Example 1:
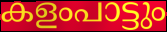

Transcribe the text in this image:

കളംപാട്ടും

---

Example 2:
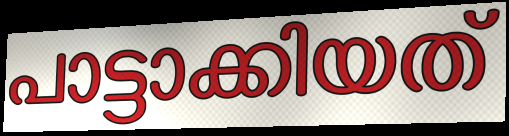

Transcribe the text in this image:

പാട്ടാക്കിയത്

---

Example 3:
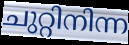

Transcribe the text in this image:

ചുറ്റിനിന്ന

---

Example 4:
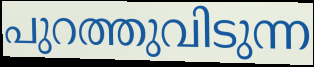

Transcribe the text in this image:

പുറത്തുവിടുന്ന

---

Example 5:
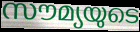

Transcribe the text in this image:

സൗമ്യയുടെ